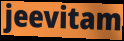
jeevitam